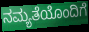
ನಮ್ಯತೆಯೊಂದಿಗೆ